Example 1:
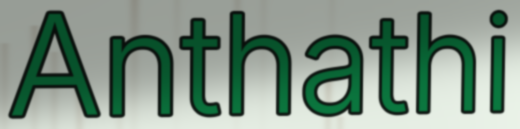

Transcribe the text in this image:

Anthathi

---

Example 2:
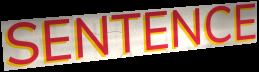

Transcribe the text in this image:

SENTENCE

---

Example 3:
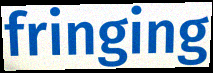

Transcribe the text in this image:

fringing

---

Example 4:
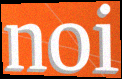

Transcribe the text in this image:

noi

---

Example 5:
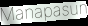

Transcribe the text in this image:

Manapasun